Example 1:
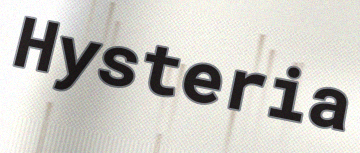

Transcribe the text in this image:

Hysteria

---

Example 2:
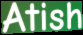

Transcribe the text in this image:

Atish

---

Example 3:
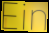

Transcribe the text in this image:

Ein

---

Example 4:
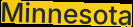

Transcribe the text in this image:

Minnesota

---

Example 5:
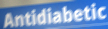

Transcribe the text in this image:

Antidiabetic